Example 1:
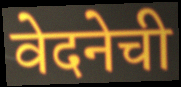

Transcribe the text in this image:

वेदनेची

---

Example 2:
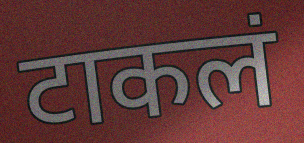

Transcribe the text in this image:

टाकलं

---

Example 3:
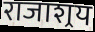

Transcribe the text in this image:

राजाश्रय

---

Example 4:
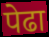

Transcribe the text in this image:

पेढा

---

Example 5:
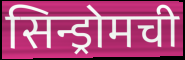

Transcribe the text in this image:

सिन्ड्रोमची